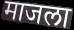
माजला